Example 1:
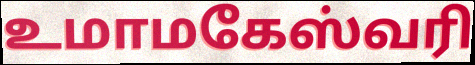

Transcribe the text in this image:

உமாமகேஸ்வரி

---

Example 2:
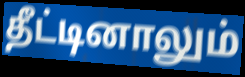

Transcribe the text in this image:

தீட்டினாலும்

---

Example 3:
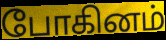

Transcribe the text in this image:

போகினம்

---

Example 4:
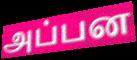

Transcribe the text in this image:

அப்பன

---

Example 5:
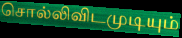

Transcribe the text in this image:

சொல்லிவிடமுடியும்